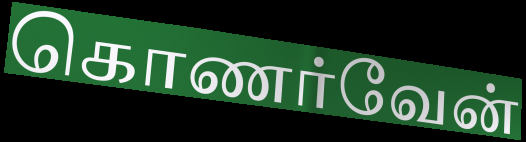
கொணர்வேன்